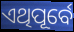
ଏଥିପୂର୍ବେ